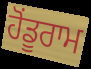
ਹੋਂਡੂਰਾਮ